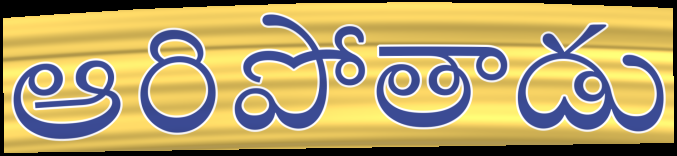
ఆరిపోతాడు